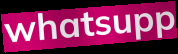
whatsupp